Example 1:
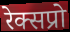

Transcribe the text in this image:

रेक्सप्रो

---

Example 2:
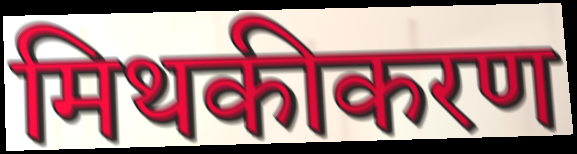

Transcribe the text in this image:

मिथकीकरण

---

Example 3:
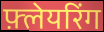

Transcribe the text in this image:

फ़्लेयरिंग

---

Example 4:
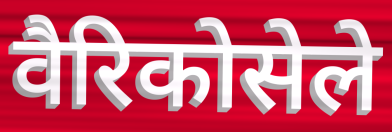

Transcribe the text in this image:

वैरिकोसेले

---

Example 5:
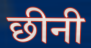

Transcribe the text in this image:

छीनी